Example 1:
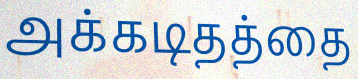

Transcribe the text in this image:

அக்கடிதத்தை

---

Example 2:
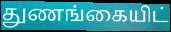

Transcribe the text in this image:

துணங்கையிட்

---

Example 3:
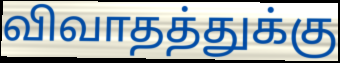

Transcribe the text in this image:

விவாதத்துக்கு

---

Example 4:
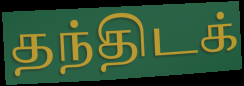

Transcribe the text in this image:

தந்திடக்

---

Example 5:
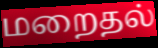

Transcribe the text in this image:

மறைதல்